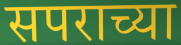
सपराच्या